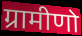
ग्रामीणो